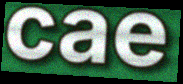
cae